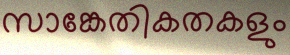
സാങ്കേതികതകളും